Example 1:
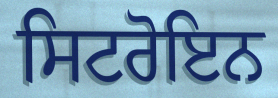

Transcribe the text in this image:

ਸਿਟਰੋਇਨ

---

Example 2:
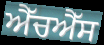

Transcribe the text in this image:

ਐੱਚਐੱਸ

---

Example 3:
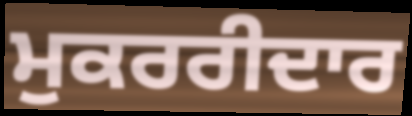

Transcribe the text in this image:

ਮੁਕਰਰੀਦਾਰ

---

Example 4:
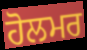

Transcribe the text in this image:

ਹੋਲਮਰ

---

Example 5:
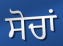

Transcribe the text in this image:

ਸੋਚਾਂ